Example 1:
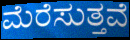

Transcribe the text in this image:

ಮೆರೆಸುತ್ತವೆ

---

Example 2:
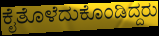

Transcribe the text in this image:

ಕೈತೊಳೆದುಕೊಂಡಿದ್ದರು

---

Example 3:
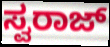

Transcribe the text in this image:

ಸ್ವರಾಜ್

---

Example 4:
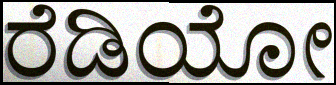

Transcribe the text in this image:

ರೆಡಿಯೋ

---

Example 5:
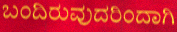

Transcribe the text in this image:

ಬಂದಿರುವುದರಿಂದಾಗಿ